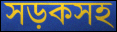
সড়কসহ